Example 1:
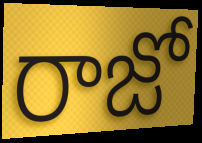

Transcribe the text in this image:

రాజో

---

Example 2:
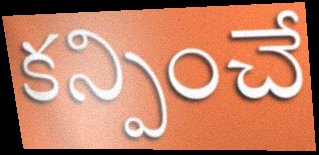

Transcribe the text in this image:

కన్పించే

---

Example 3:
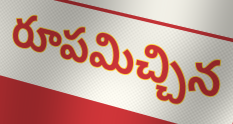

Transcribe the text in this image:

రూపమిచ్చిన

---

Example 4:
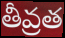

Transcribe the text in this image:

తీవ్రత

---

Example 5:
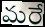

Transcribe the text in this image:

మరే